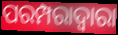
ପରମ୍ପରାଦ୍ବାରା